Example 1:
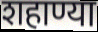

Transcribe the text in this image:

शहाण्या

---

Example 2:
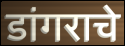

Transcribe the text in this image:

डांगराचे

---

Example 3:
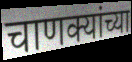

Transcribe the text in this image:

चाणक्यांच्या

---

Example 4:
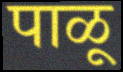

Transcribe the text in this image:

पाळू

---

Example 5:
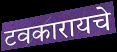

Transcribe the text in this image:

टवकारायचे